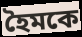
হৈমকে